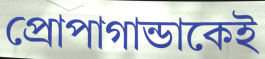
প্রোপাগান্ডাকেই